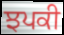
ਝਪਕੀ